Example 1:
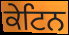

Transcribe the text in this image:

ਕੇਟਿਨ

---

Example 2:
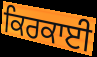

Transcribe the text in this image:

ਕਿਰਕਾਈ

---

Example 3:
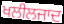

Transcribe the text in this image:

ਖਲੀਲਜਾਦ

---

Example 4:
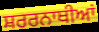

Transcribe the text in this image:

ਸ਼ਰਰਨਾਥੀਆਂ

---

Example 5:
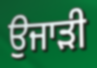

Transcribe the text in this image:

ਉਜਾੜੀ